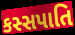
કસ્સપાતિ